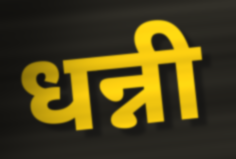
धन्नी